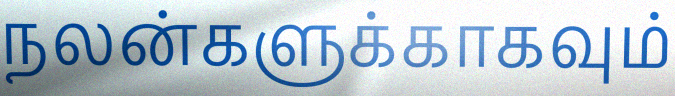
நலன்களுக்காகவும்